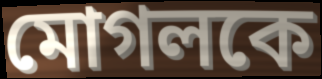
মোগলকে